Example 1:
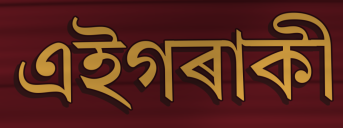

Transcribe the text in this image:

এইগৰাকী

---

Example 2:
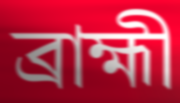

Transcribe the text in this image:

ব্ৰাহ্মী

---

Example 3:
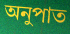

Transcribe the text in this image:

অনুপাত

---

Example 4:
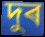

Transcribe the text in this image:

দুৰ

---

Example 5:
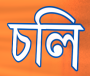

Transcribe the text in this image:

চলি